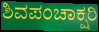
ಶಿವಪಂಚಾಕ್ಷರಿ